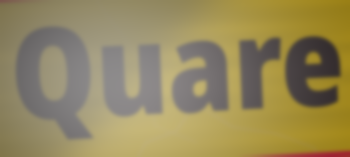
Quare